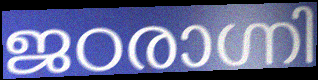
ജഠരാഗ്നി